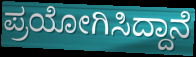
ಪ್ರಯೋಗಿಸಿದ್ದಾನೆ